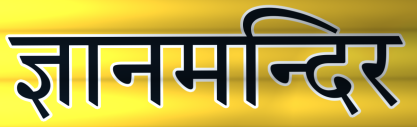
ज्ञानमन्दिर